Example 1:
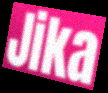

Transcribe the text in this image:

Jika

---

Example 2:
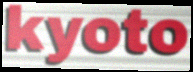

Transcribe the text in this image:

kyoto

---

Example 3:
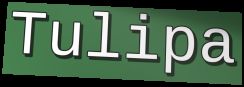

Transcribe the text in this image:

Tulipa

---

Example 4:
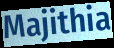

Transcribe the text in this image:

Majithia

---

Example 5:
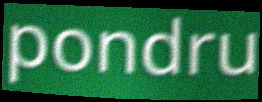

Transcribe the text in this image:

pondru